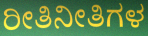
ರೀತಿನೀತಿಗಳ